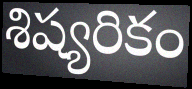
శిష్యరికం